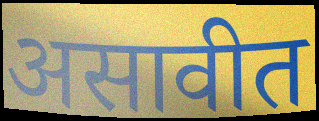
असावीत